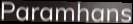
Paramhans